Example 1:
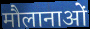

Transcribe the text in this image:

मौलानाओं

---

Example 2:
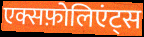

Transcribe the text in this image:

एक्सफ़ोलिएंट्स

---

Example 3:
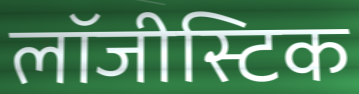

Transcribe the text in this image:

लॉजीस्टिक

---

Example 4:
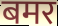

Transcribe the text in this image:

बमर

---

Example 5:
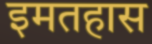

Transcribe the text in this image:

इमतहास